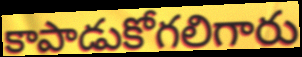
కాపాడుకోగలిగారు